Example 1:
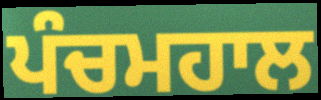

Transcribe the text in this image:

ਪੰਚਮਹਾਲ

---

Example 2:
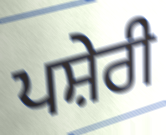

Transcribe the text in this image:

ਪਸ਼ੇਰੀ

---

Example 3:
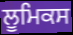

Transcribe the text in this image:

ਲੂਮਿਕਸ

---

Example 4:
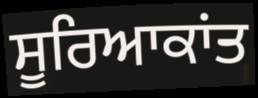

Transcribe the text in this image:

ਸੂਰਿਆਕਾਂਤ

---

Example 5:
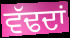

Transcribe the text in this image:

ਵੱਢਦਾਂ